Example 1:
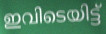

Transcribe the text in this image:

ഇവിടെയിട്ട്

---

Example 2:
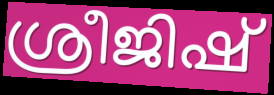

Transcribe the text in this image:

ശ്രീജിഷ്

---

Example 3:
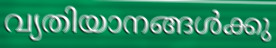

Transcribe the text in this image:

വ്യതിയാനങ്ങൾക്കു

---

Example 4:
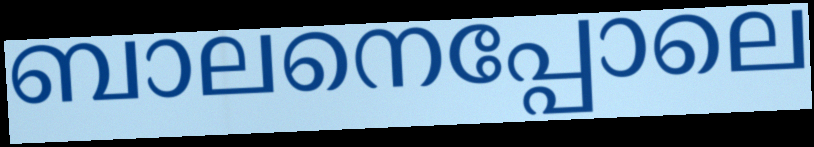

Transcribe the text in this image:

ബാലനെപ്പോലെ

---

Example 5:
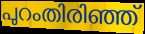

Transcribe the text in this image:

പുറംതിരിഞ്ഞ്